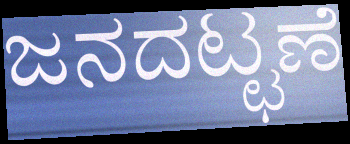
ಜನದಟ್ಟಣೆ